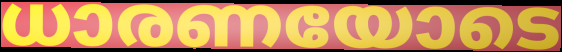
ധാരണയോടെ